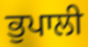
ਭੁਪਾਲੀ